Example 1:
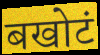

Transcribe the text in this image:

बखोटं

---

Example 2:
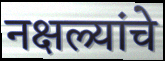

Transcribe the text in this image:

नक्षल्यांचे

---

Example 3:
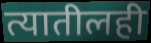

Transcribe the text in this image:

त्यातीलही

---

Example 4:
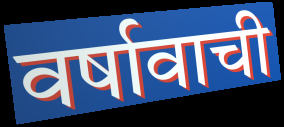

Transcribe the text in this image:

वर्षावाची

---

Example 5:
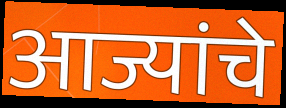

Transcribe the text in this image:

आज्यांचे